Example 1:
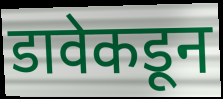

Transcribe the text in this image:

डावेकडून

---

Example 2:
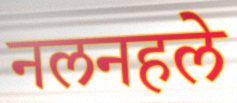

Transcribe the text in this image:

नलनहले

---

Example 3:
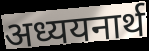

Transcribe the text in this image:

अध्ययनार्थ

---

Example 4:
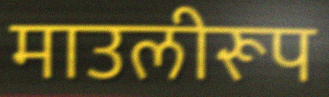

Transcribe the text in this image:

माउलीरूप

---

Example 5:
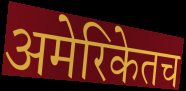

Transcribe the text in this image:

अमेरिकेतच